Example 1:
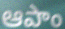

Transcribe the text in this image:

ఆపాం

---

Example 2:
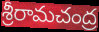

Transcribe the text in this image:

శ్రీరామచంద్ర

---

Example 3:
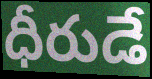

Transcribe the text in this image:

ధీరుడే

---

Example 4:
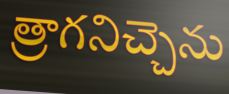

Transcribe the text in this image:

త్రాగనిచ్చెను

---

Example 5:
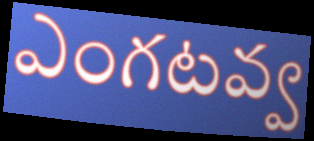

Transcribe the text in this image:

ఎంగటవ్వ